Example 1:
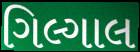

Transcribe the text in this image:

ગિલ્ગાલ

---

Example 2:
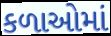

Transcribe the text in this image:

કળાઓમાં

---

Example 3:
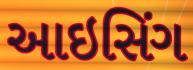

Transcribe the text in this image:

આઇસિંગ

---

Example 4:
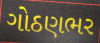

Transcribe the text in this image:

ગોઠણભર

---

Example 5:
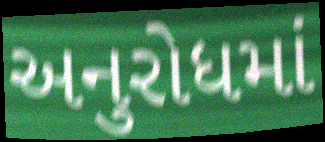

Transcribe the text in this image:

અનુરોધમાં